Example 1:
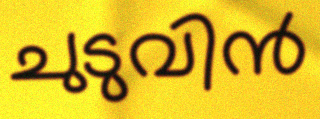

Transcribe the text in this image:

ചുടുവിൻ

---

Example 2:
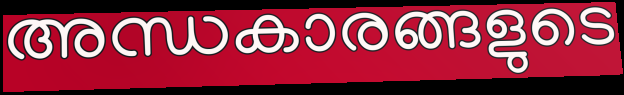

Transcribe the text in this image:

അന്ധകാരങ്ങളുടെ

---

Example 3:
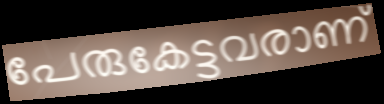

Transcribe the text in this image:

പേരുകേട്ടവരാണ്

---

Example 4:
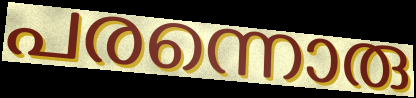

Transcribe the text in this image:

പരന്നൊരു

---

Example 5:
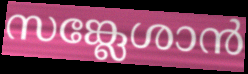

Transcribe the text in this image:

സങ്ക്ലേശാൻ